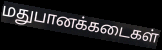
மதுபானக்கடைகள்